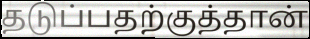
தடுப்பதற்குத்தான்